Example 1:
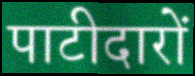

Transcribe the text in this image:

पाटीदारों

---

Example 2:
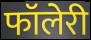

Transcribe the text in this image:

फॉलेरी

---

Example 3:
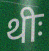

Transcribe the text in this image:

थीः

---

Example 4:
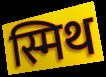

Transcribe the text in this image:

स्मिथ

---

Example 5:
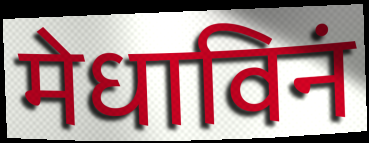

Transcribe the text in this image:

मेधाविनं